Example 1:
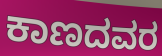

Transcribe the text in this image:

ಕಾಣದವರ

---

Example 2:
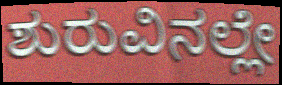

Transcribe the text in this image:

ಶುರುವಿನಲ್ಲೇ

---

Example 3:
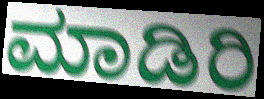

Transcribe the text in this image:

ಮಾಡಿರಿ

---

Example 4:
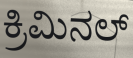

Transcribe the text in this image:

ಕ್ರಿಮಿನಲ್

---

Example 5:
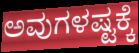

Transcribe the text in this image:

ಅವುಗಳಷ್ಟಕ್ಕೆ